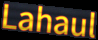
Lahaul